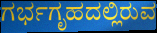
ಗರ್ಭಗೃಹದಲ್ಲಿರುವ